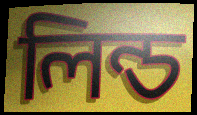
লিন্ড